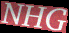
NHG